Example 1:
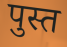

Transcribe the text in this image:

पुस्त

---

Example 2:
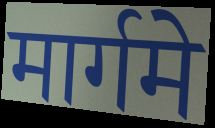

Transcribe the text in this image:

मार्गमे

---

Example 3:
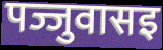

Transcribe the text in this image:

पज्जुवासइ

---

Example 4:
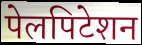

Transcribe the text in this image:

पेलपिटेशन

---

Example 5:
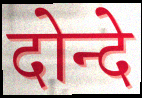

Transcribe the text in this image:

दोन्दे